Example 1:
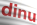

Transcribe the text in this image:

dinu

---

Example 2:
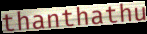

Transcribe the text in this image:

thanthathu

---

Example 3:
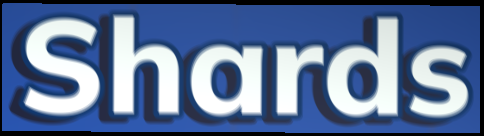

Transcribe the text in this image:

Shards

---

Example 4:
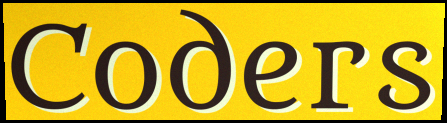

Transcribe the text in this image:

Coders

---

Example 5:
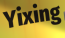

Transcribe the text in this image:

Yixing